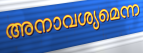
അനാവശ്യമെന്ന